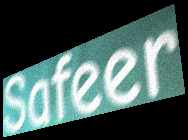
Safeer